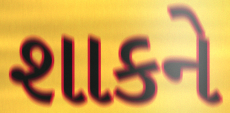
શાકને